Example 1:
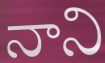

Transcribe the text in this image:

నాని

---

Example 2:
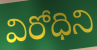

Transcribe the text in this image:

విరోధిని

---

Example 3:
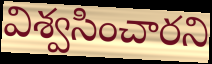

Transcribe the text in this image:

విశ్వసించారని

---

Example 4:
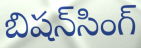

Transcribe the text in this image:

బిషన్‌సింగ్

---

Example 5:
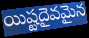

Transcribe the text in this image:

యిష్టదైవమైన